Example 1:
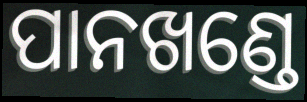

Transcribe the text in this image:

ପାନଖଣ୍ଡେ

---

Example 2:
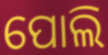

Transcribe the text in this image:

ପୋଲି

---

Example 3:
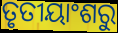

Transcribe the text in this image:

ତୃତୀୟାଂଶରୁ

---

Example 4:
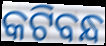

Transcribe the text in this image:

କଟିବନ୍ଧ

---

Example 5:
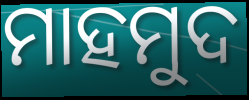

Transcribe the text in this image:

ମାହମୁଦ